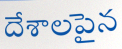
దేశాలపైన